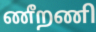
ணீறணி